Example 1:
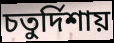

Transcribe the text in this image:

চতুর্দিশায়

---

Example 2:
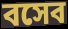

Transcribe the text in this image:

বসেব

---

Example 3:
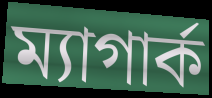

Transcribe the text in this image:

ম্যাগার্ক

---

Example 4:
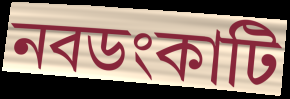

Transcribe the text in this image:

নবডংকাটি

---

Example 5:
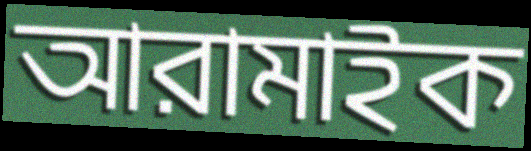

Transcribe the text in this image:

আরামাইক